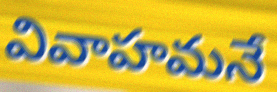
వివాహమనే